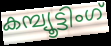
കമ്പ്യൂട്ടിംഗ്